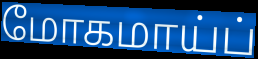
மோகமாய்ப்